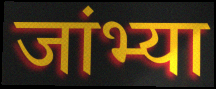
जांभ्या